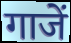
गाजें